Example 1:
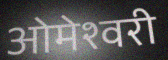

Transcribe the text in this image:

ओमेश्वरी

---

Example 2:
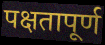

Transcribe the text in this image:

पक्षतापूर्ण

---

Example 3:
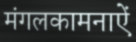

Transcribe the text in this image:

मंगलकामनाऐं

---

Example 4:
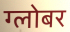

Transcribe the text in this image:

ग्लोबर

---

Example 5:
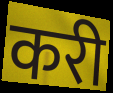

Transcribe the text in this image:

करी